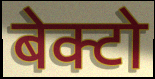
बेक्टो